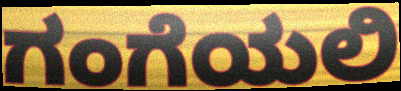
ಗಂಗೆಯಲಿ